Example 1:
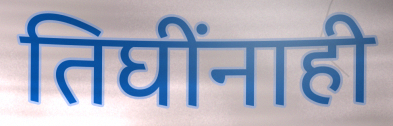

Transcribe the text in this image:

तिघींनाही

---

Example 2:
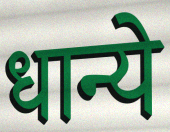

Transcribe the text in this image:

धान्ये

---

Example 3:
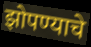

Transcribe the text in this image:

झोपण्याचे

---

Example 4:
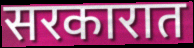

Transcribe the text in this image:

सरकारात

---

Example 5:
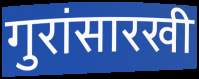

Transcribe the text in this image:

गुरांसारखी